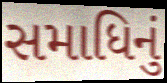
સમાધિનું